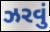
ઝરવું